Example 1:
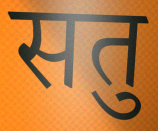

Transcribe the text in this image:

सतु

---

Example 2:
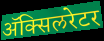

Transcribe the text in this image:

ॲक्सिलरेटर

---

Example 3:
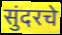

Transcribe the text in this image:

सुंदरचे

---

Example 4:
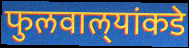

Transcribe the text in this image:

फुलवाल्यांकडे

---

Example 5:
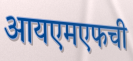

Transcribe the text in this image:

आयएमएफची